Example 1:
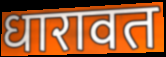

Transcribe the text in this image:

धारावत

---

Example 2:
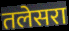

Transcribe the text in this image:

तलेसरा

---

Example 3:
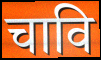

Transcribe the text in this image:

चावि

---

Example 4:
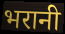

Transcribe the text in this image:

भरानी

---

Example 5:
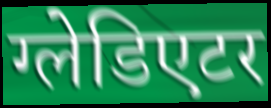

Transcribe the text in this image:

ग्लेडिएटर